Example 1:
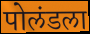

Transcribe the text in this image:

पोलंडला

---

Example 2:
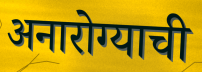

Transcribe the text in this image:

अनारोग्याची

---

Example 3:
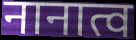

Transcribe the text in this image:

नानात्व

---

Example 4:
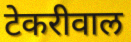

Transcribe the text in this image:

टेकरीवाल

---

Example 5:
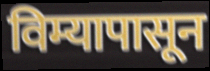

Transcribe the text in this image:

विम्यापासून